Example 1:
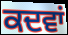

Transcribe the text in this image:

ਕਦਵਾਂ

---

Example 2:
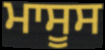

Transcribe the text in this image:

ਮਾਸੂਸ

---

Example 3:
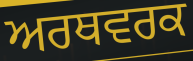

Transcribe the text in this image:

ਅਰਥਵਰਕ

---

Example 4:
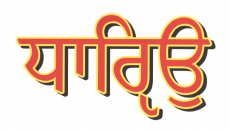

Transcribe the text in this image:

ਧਾਰੵਿਉ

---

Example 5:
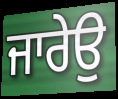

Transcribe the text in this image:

ਜਾਰੇਉ